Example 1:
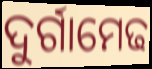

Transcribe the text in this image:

ଦୁର୍ଗାମେଢ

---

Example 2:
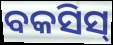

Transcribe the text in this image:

ବକସିସ୍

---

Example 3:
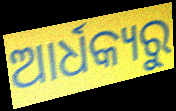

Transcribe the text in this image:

ଆର୍ଧକ୍ୟରୁ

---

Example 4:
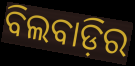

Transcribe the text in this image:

ବିଲବାଡ଼ିର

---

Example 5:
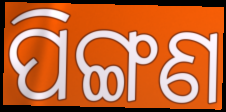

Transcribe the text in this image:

ପିଙ୍ଗଣ